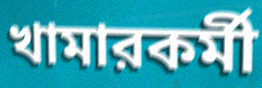
খামারকর্মী